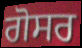
ਗੋਸਰ